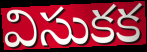
విసుకక